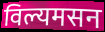
विल्यमसन